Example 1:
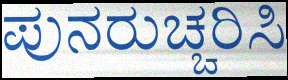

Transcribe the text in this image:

ಪುನರುಚ್ಚರಿಸಿ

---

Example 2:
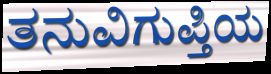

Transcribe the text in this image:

ತನುವಿಗುಪ್ತಿಯ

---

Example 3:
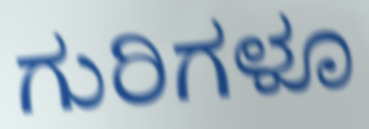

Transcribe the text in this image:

ಗುರಿಗಳೂ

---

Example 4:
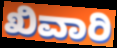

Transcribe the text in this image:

ಖಿವಾರಿ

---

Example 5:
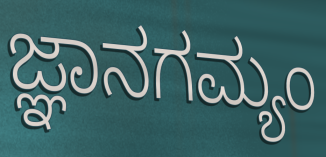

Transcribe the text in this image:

ಜ್ಞಾನಗಮ್ಯಂ